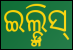
ଇଲ୍ଡ୍ମିସ୍